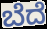
ಬೆದೆ